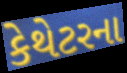
કેથેટરના